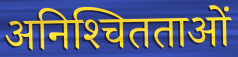
अनिश्‍चितताओं